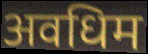
अवधिम